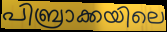
പിബ്രാക്കയിലെ